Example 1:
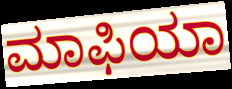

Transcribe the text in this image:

ಮಾಫಿಯಾ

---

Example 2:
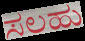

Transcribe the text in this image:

ಸಲಹು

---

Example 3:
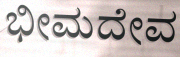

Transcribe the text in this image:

ಭೀಮದೇವ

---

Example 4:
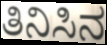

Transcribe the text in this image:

ತಿನಿಸಿನ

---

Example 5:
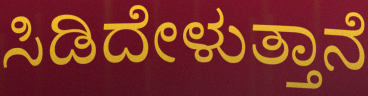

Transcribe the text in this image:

ಸಿಡಿದೇಳುತ್ತಾನೆ